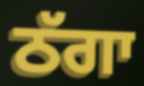
ਠੱਗਾ